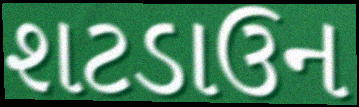
શટડાઉન